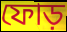
ফোড়